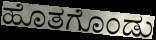
ಹೊತಗೊಂಡು